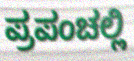
ಪ್ರಪಂಚಲ್ಲಿ